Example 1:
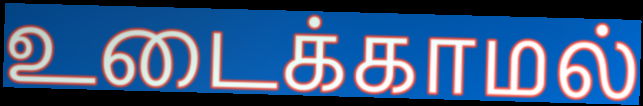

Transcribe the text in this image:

உடைக்காமல்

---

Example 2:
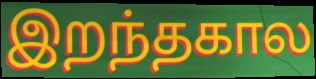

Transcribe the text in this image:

இறந்தகால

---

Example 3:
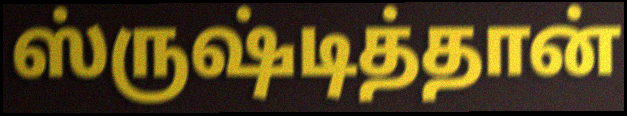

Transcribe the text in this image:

ஸ்ருஷ்டித்தான்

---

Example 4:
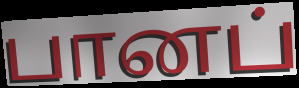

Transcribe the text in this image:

பானப்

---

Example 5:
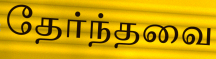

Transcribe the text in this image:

தேர்ந்தவை